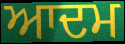
ਆਦਮ